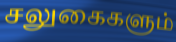
சலுகைகளும்